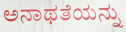
ಅನಾಥತೆಯನ್ನು